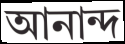
আনান্দ